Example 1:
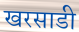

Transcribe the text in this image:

खरसाडी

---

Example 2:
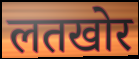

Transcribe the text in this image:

लतखोर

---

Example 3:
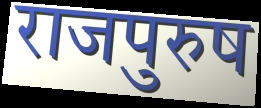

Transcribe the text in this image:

राजपुरुष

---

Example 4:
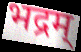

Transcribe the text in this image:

भद्रम्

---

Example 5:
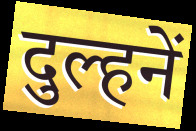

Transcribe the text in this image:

दुल्हनें